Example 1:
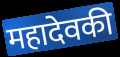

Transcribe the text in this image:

महादेवकी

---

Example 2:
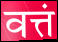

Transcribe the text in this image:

वत्तं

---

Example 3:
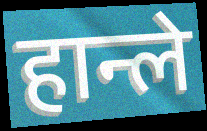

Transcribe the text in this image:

हान्ले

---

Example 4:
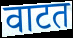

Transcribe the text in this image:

वाटत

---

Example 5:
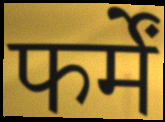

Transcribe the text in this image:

फर्में